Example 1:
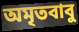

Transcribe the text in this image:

অমৃতবাবু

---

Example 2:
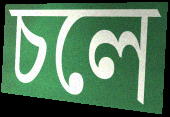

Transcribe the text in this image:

চলে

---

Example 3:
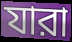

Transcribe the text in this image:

যারা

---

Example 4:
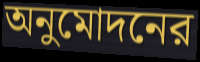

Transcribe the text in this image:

অনুমোদনের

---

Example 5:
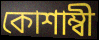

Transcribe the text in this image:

কোশাম্বী